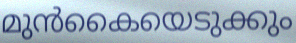
മുൻകൈയെടുക്കും